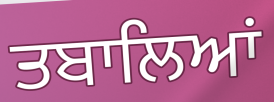
ਤਬਾਲਿਆਂ